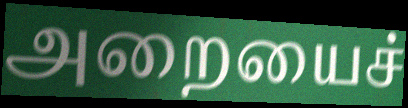
அறையைச்